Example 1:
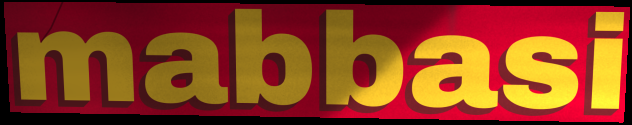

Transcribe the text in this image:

mabbasi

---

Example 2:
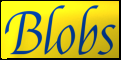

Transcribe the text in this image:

Blobs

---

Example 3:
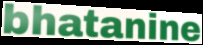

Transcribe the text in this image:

bhatanine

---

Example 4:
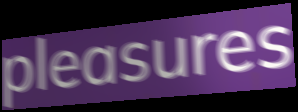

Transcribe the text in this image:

pleasures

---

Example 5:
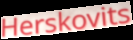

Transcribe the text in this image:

Herskovits